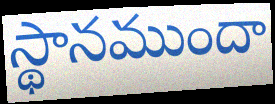
స్థానముందా